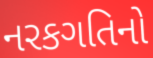
નરકગતિનો